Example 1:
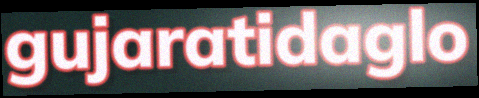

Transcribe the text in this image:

gujaratidaglo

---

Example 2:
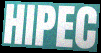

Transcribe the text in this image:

HIPEC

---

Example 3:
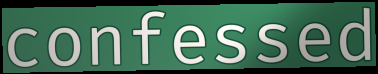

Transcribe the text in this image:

confessed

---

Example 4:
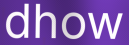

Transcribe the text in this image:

dhow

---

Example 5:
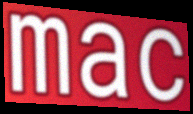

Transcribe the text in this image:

mac